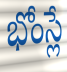
భోంస్లే